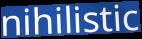
nihilistic